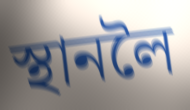
স্থানলৈ